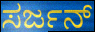
ಸರ್ಜನ್